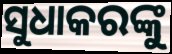
ସୁଧାକରଙ୍କୁ